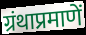
ग्रंथाप्रमाणें